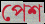
পেশ